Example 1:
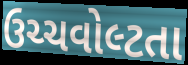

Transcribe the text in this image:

ઉચ્ચવોલ્ટતા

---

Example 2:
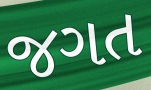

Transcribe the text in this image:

જગત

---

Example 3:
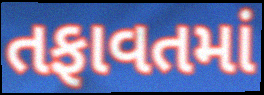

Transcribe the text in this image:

તફાવતમાં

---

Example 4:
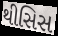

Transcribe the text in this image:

થીસિસ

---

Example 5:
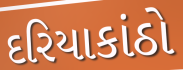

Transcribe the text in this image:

દરિયાકાંઠો